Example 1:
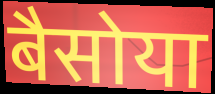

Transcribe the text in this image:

बैसोया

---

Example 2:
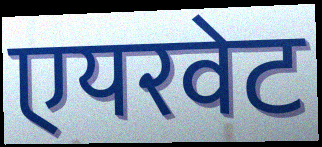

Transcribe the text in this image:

एयरवेट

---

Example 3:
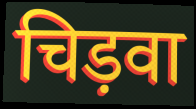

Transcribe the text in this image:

चिड़वा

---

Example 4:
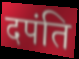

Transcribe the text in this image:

दपंति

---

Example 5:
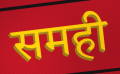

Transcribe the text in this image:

समही